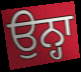
ਉਨ੍ਹਾ